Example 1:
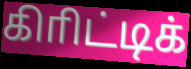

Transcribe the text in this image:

கிரிட்டிக்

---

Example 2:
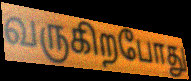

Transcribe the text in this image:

வருகிறபோது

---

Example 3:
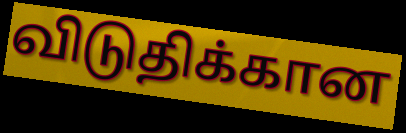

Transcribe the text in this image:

விடுதிக்கான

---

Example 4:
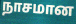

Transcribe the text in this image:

நாசமான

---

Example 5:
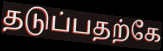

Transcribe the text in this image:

தடுப்பதற்கே